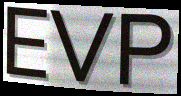
EVP